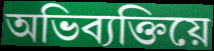
অভিব্যক্তিয়ে